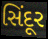
સિંદૂર